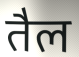
तैल